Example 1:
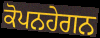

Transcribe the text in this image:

ਕੋਪਨਹੇਗਨ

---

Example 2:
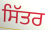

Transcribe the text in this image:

ਸਿੱਤਰ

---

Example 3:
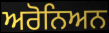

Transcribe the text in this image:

ਅਰੋਨਿਅਨ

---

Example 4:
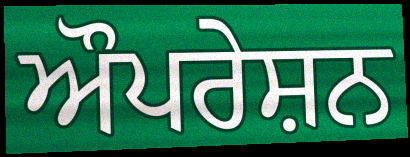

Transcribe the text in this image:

ਔਪਰੇਸ਼ਨ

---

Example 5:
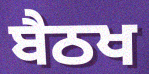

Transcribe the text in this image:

ਬੈਠਖ